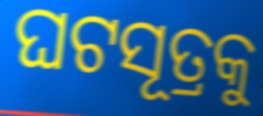
ଘଟସୂତ୍ରକୁ